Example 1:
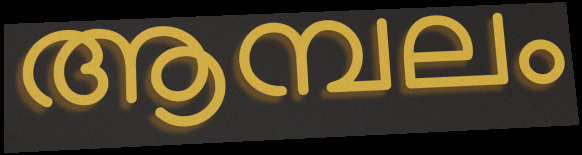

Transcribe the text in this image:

ആമ്പലം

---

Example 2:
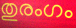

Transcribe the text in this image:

തുരംഗം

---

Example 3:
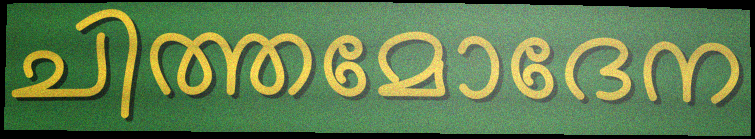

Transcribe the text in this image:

ചിത്തമോദേന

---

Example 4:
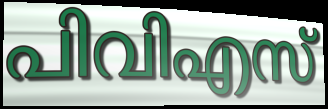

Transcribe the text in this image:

പിവിഎസ്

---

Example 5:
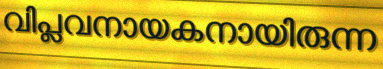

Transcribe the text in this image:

വിപ്ലവനായകനായിരുന്ന